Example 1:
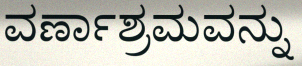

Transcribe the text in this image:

ವರ್ಣಾಶ್ರಮವನ್ನು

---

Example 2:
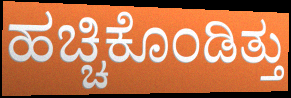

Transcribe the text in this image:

ಹಚ್ಚಿಕೊಂಡಿತ್ತು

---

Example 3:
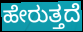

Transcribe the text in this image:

ಹೇರುತ್ತದೆ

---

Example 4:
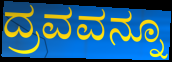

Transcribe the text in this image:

ದ್ರವವನ್ನೂ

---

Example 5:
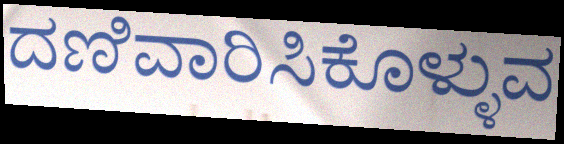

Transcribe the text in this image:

ದಣಿವಾರಿಸಿಕೊಳ್ಳುವ